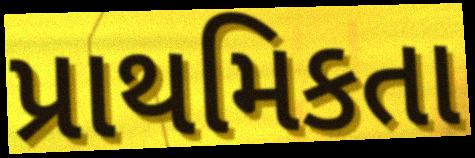
પ્રાથમિકતા